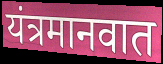
यंत्रमानवात